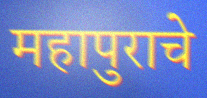
महापुराचे